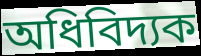
অধিবিদ্যক